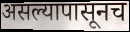
असल्यापासूनच